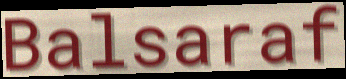
Balsaraf